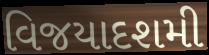
વિજયાદશમી